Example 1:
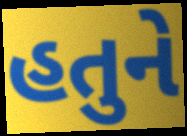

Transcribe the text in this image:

હતુને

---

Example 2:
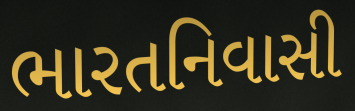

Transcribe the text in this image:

ભારતનિવાસી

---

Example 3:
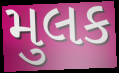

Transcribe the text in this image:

મુલક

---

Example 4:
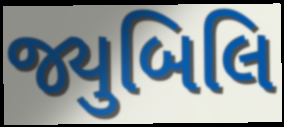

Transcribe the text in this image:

જ્યુબિલિ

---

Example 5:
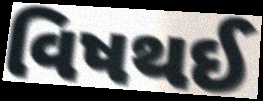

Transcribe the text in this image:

વિષથઈ